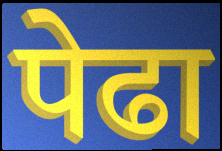
पेढा